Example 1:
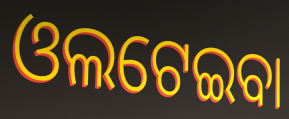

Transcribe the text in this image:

ଓଲଟେଇବା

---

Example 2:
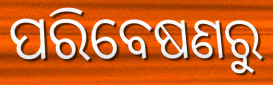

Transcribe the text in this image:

ପରିବେଷଣରୁ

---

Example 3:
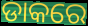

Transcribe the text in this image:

ଡାକରେ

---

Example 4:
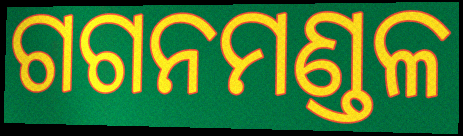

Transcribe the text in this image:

ଗଗନମଣ୍ଡଳ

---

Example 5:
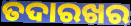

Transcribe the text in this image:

ତଦାରଖର